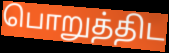
பொறுத்திட